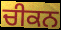
ਚੀਕਨ